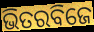
ଭିତରବିଜେ